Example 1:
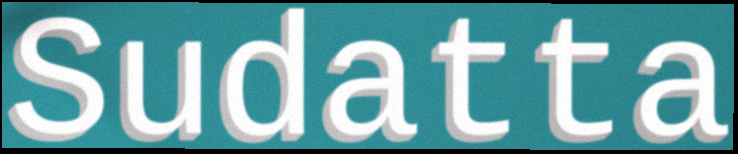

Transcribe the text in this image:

Sudatta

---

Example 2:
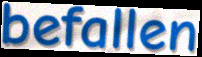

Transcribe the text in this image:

befallen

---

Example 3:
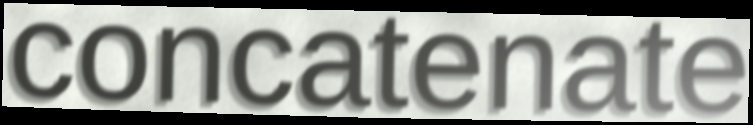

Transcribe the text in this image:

concatenate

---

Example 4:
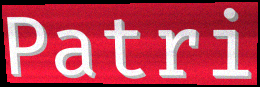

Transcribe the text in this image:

Patri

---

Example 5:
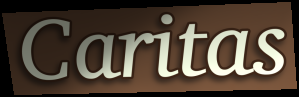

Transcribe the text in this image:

Caritas